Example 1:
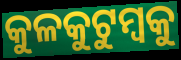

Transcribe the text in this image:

କୁଳକୁଟୁମ୍ବକୁ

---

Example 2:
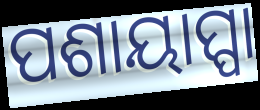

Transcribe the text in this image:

ପଶାୟାପ୍ପା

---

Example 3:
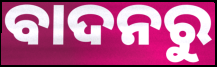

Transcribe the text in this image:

ବାଦନରୁ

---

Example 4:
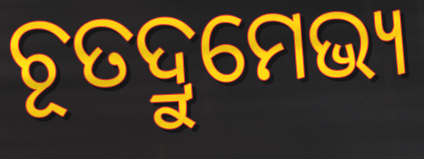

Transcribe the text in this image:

ଚୂତଦ୍ରୁମେଭ୍ୟ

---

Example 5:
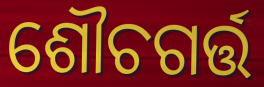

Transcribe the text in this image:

ଶୌଚଗର୍ତ୍ତ